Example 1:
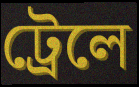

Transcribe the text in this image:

ট্রেলে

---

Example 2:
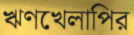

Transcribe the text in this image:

ঋণখেলাপির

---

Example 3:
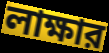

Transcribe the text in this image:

লাক্ষার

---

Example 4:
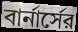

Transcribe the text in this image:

বার্নার্সের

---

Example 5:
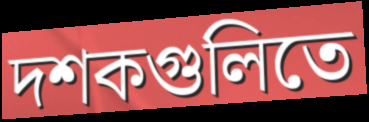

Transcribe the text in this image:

দশকগুলিতে